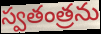
స్వతంత్రను